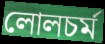
লোলচর্ম